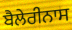
ਬੈਲੇਰੀਨਾਸ